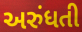
અરુંધતી